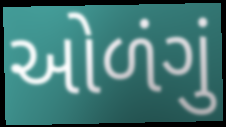
ઓળંગું